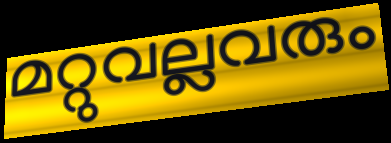
മറ്റുവല്ലവരും